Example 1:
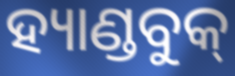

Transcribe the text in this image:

ହ୍ୟାଣ୍ଡବୁକ୍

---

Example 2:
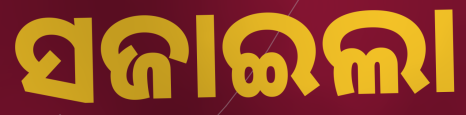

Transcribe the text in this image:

ସଜାଇଲା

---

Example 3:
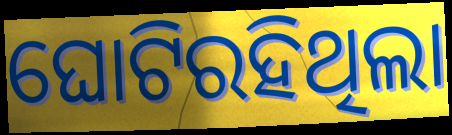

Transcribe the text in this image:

ଘୋଟିରହିଥିଲା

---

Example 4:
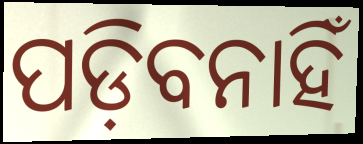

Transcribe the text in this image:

ପଡ଼ିବନାହିଁ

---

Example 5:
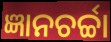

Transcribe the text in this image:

ଜ୍ଞାନଚର୍ଚ୍ଚା